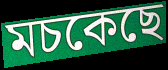
মচকেছে